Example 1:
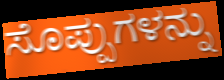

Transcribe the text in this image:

ಸೊಪ್ಪುಗಳನ್ನು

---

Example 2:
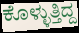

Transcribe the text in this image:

ಕೊಳ್ಳುತ್ತಿದ್ದ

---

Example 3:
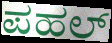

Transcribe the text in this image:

ಪಹಲ್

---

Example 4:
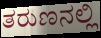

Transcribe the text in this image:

ತರುಣನಲ್ಲಿ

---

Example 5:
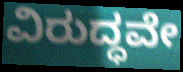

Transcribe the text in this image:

ವಿರುದ್ಧವೇ